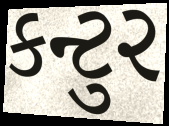
કન્ટુર